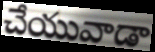
చేయువాడా